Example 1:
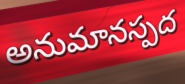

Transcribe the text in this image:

అనుమానస్పద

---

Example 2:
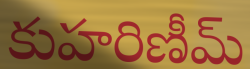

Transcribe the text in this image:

కుహరిణీమ్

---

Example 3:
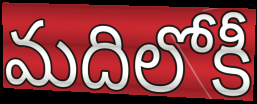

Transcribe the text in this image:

మదిలోకీ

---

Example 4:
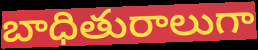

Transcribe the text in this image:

బాధితురాలుగా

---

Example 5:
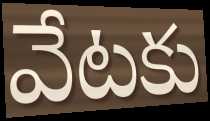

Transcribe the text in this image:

వేటకు